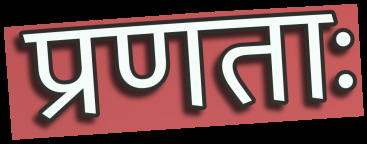
प्रणताः